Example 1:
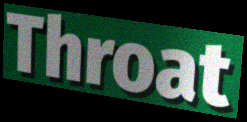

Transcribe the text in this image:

Throat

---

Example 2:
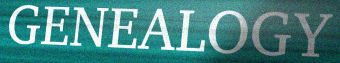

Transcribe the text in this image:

GENEALOGY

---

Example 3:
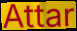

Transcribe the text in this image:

Attar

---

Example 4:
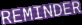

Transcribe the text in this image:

REMINDER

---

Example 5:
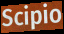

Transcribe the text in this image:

Scipio